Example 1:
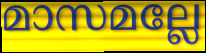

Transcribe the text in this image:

മാസമല്ലേ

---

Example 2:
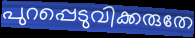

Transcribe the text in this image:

പുറപ്പെടുവിക്കരുതേ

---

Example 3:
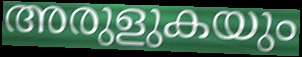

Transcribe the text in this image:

അരുളുകയും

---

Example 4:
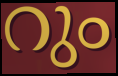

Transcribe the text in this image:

റും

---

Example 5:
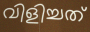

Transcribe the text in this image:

വിളിച്ചത്